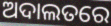
ଅଦାଲତରେ